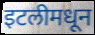
इटलीमधून